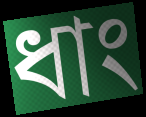
ধাং